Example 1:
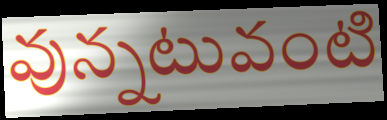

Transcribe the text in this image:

వున్నటువంటి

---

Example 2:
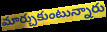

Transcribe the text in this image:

మార్చుకుంటున్నారు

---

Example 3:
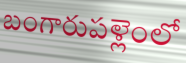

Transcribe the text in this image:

బంగారుపళ్లెంలో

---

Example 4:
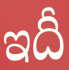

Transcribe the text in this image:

ఇదీ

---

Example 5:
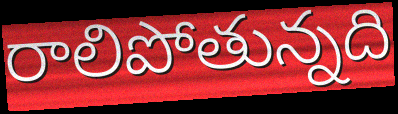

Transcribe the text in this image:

రాలిపోతున్నది